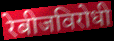
रेबीजविरोधी